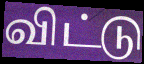
விட்டு